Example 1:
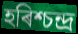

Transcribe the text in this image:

হৰিশ্চন্দ্ৰ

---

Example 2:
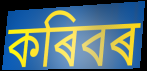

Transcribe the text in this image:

কৰিবৰ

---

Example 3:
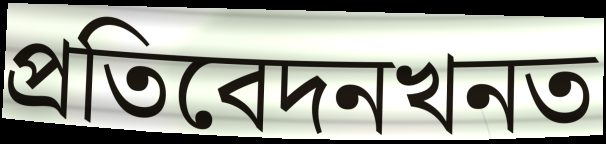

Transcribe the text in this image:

প্ৰতিবেদনখনত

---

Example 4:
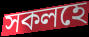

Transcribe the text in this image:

সকলহে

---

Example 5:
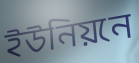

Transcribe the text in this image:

ইউনিয়নে